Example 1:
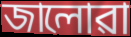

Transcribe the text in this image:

জালোৱা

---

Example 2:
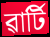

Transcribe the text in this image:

ৱাৰ্টি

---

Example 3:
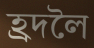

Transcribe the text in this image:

হ্ৰদলৈ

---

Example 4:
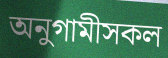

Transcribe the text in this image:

অনুগামীসকল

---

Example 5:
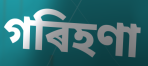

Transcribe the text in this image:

গৰিহণা